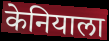
केनियाला